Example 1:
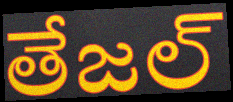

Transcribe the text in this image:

తేజల్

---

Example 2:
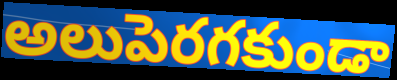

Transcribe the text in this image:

అలుపెరగకుండా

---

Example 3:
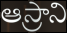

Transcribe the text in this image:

ఆస్రాని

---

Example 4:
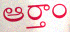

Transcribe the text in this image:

ఆర్తాం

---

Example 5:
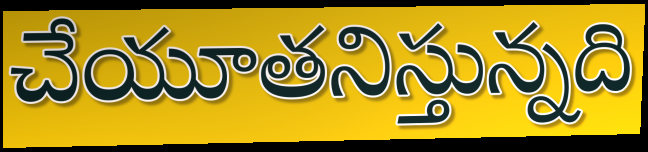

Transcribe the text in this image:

చేయూతనిస్తున్నది